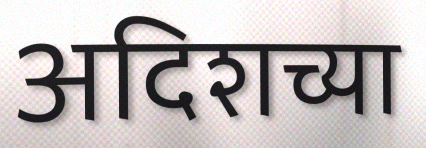
अदिशच्या